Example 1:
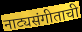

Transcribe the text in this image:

नाट्यसंगीताची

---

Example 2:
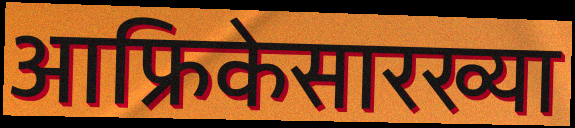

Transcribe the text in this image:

आफ्रिकेसारख्या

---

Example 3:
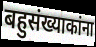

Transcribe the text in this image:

बहुसंख्याकांना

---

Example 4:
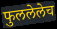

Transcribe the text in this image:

फुललेलेच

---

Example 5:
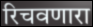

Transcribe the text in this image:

रिचवणारा